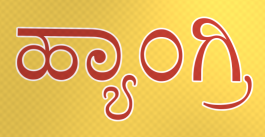
ಹ್ಯಾಂಗ್ರಿ